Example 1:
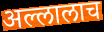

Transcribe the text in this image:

अल्लालाच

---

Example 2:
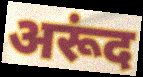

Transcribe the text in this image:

अरूंद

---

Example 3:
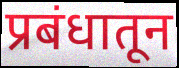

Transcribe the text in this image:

प्रबंधातून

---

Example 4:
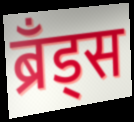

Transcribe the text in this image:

ब्रँड्स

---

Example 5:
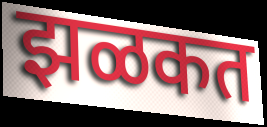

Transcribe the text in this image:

झळकत